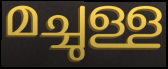
മച്ചുള്ള